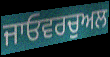
ਜਾਓਵਰਚੁਅਲ